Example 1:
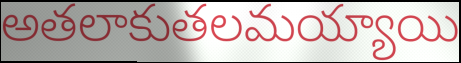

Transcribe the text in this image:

అతలాకుతలమయ్యాయి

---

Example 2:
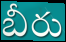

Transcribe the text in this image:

బీరు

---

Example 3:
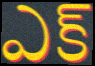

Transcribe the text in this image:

ఎక్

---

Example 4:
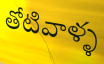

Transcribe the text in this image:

తోటివాళ్ళ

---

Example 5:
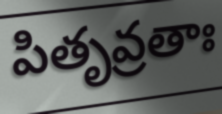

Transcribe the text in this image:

పితృవ్రతాః